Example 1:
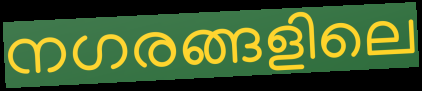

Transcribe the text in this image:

നഗരങ്ങളിലെ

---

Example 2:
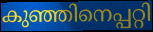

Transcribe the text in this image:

കുഞ്ഞിനെപ്പറ്റി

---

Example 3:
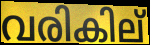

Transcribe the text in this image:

വരികില്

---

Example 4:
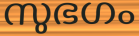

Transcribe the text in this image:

സുഭഗം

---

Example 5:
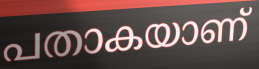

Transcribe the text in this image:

പതാകയാണ്